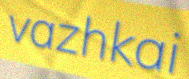
vazhkai